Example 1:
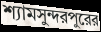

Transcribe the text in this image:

শ্যামসুন্দরপুরের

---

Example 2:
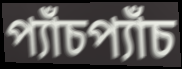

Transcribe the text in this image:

প্যাঁচপ্যাঁচ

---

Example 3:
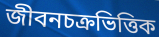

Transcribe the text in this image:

জীবনচক্রভিত্তিক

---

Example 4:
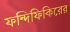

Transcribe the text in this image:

ফন্দিফিকিরের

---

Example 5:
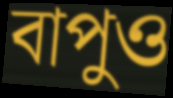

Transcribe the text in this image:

বাপুও